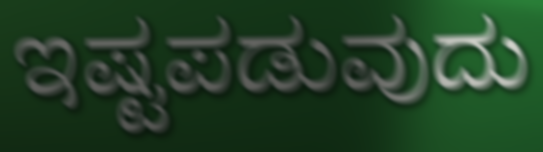
ಇಷ್ಟಪಡುವುದು